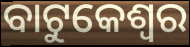
ବାଟୁକେଶ୍ୱର